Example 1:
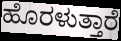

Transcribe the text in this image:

ಹೊರಳುತ್ತಾರೆ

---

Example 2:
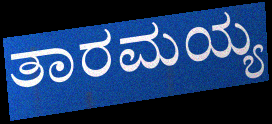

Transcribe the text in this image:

ತಾರಮಯ್ಯ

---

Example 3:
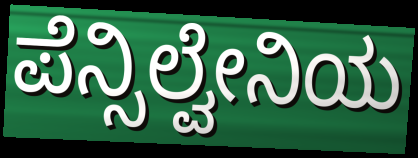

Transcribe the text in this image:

ಪೆನ್ಸಿಲ್ವೇನಿಯ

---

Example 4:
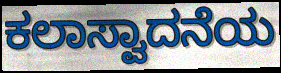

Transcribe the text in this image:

ಕಲಾಸ್ವಾದನೆಯ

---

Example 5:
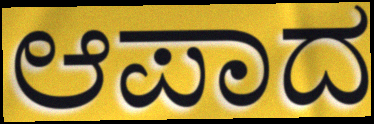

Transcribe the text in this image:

ಆಪಾದ